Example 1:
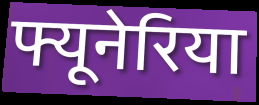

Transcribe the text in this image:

फ्यूनेरिया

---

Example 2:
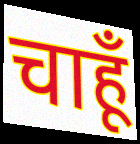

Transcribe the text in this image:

चाहूँ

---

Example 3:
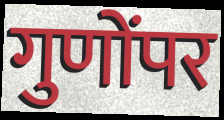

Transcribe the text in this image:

गुणोंपर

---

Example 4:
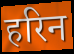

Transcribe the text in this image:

हरिन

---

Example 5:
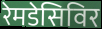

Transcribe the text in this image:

रेमडेसिविर